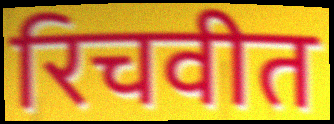
रिचवीत